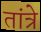
तांत्रे